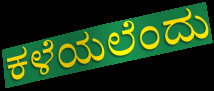
ಕಳೆಯಲೆಂದು